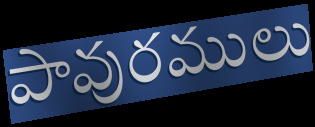
పావురములు